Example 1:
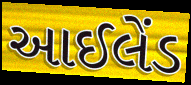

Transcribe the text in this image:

આઈલેંડ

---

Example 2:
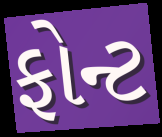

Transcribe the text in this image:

ફોન્ટ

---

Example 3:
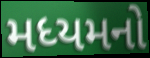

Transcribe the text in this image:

મધ્યમનો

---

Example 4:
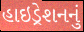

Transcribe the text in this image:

હાઇડ્રેશનનું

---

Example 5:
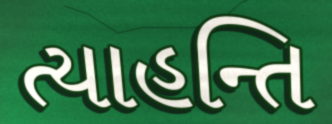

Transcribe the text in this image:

ત્યાહન્તિ